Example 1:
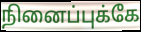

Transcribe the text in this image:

நினைப்புக்கே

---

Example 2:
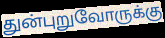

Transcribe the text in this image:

துன்புறுவோருக்கு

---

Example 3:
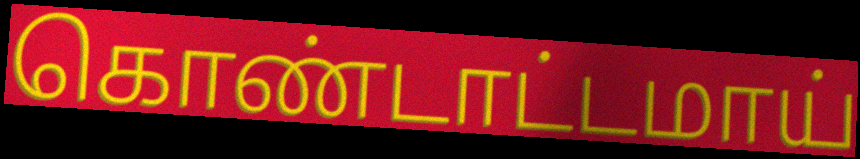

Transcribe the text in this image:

கொண்டாட்டமாய்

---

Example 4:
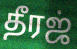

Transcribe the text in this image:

தீரஜ்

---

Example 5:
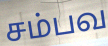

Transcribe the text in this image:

சம்பவ